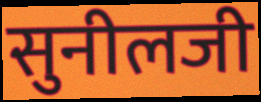
सुनीलजी